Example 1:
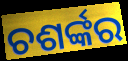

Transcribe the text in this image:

ଚଶର୍ଙ୍କର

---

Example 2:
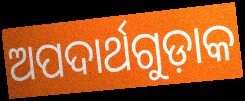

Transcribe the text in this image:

ଅପଦାର୍ଥଗୁଡ଼ାକ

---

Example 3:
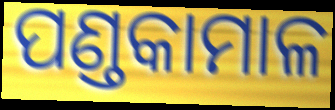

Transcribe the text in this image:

ପଣ୍ଡକାମାଳ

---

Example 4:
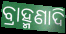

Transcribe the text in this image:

ବ୍ରାହ୍ମଣାଦି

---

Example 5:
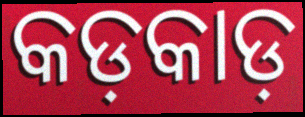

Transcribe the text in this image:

କଡ଼କାଡ଼